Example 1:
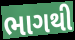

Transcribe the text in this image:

ભાગથી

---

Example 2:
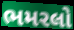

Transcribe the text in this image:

ભમરલો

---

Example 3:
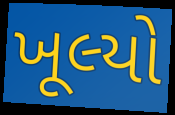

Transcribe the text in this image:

ખૂલ્યો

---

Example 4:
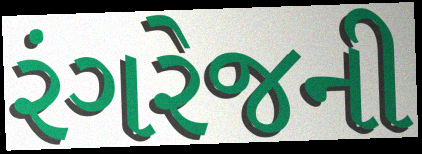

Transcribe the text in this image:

રંગરેજની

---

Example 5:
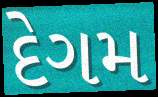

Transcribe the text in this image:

દેગમ